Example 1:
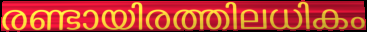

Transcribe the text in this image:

രണ്ടായിരത്തിലധികം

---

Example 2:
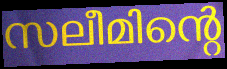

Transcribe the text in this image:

സലീമിന്റെ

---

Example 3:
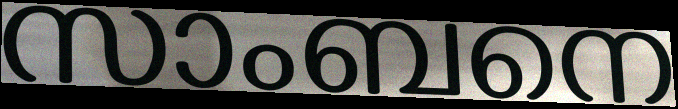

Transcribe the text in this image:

സാംബനെ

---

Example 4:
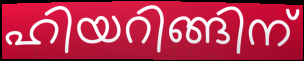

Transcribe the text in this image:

ഹിയറിങ്ങിന്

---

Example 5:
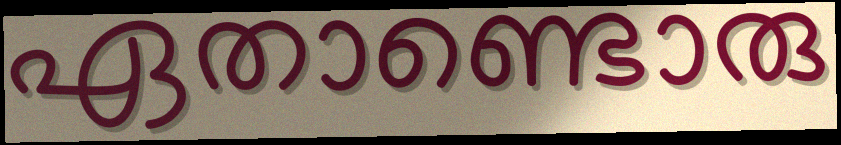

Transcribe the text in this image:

ഏതാണ്ടൊരു